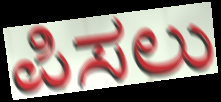
ಪಿಸಲು